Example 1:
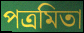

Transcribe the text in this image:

পত্রমিতা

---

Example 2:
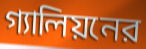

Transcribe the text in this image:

গ্যালিয়নের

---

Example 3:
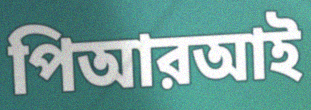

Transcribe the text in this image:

পিআরআই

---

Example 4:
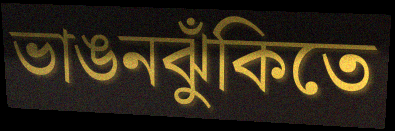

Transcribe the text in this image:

ভাঙনঝুঁকিতে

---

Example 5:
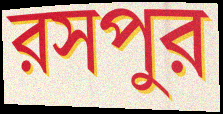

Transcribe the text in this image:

রসপুর